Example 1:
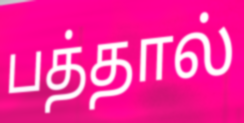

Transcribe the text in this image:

பத்தால்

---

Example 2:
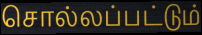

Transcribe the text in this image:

சொல்லப்பட்டும்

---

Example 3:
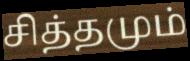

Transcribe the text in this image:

சித்தமும்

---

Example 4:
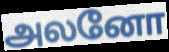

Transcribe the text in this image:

அலனோ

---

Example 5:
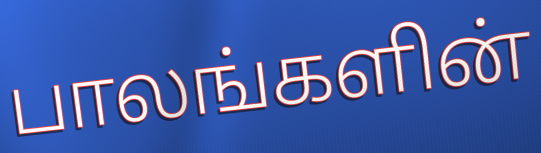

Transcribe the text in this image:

பாலங்களின்